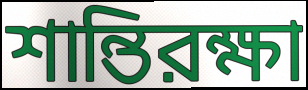
শান্তিরক্ষা